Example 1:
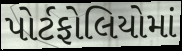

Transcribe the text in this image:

પોર્ટફોલિયોમાં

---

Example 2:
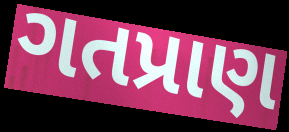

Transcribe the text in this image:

ગતપ્રાણ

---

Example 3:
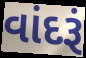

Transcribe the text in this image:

વાંદરૂં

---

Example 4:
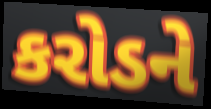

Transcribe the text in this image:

કરોડને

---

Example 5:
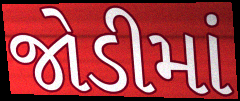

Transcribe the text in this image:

જોડીમાં